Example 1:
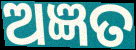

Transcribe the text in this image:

ଅଜ୍ଞତ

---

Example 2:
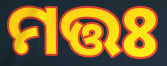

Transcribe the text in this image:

ମତ୍ତଃ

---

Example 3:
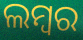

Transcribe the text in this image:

ଲମ୍ୱର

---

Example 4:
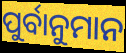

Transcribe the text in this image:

ପୁର୍ବାନୁମାନ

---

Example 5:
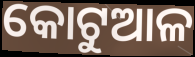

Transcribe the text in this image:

କୋଟୁଆଳ